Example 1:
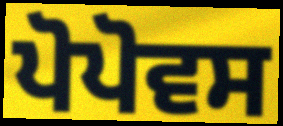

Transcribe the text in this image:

ਪੋਪੋਵਸ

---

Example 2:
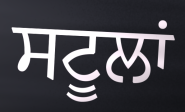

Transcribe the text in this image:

ਸਟੂਲਾਂ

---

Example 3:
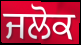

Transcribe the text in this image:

ਜਲੋਕ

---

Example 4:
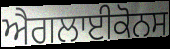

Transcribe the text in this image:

ਐਗਲਾਈਕੋਨਸ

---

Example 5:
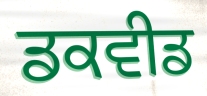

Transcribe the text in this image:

ਡਕਵੀਡ